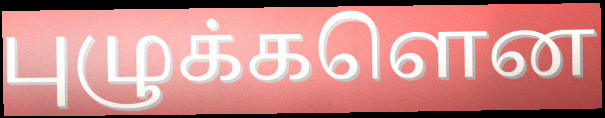
புழுக்களென